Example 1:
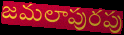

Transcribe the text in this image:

జమలాపురపు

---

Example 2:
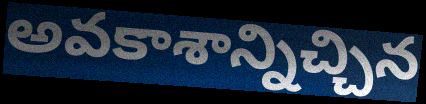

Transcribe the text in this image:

అవకాశాన్నిచ్చిన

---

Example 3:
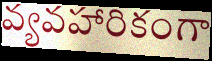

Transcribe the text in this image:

వ్యవహారికంగా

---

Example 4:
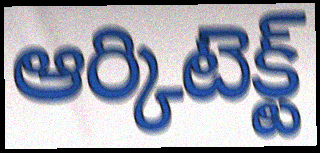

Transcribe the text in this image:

ఆర్కిటెక్ట్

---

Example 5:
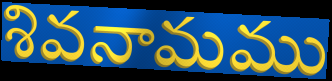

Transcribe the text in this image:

శివనామము